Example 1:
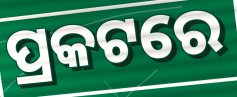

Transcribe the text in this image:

ପ୍ରକଟରେ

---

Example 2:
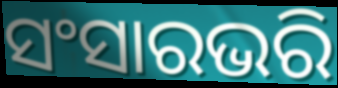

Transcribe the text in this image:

ସଂସାରଭରି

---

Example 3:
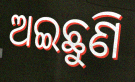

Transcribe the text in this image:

ଅଇଛୁଣି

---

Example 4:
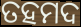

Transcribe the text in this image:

ତହମଦ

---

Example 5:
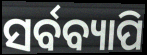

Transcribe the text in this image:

ସର୍ବବ୍ୟାପି